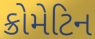
ક્રોમેટિન